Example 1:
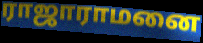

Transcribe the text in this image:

ராஜாராமனை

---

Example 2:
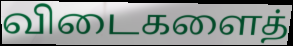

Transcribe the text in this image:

விடைகளைத்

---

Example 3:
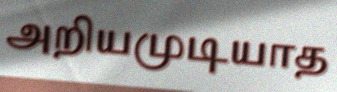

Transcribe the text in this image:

அறியமுடியாத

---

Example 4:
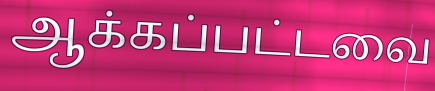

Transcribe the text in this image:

ஆக்கப்பட்டவை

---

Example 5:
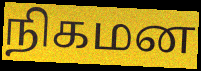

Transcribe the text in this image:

நிகமன